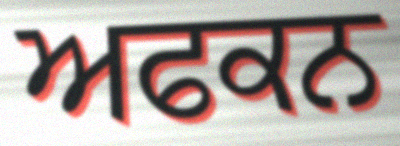
ਅਫਕਨ